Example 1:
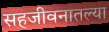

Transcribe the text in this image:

सहजीवनातल्या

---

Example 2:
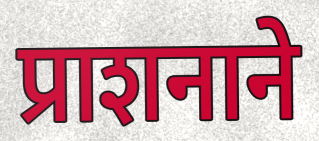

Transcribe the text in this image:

प्राशनाने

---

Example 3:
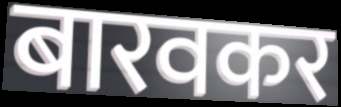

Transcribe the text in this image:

बारवकर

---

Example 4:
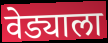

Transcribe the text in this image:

वेड्याला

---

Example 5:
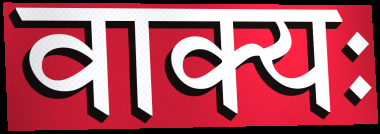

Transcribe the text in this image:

वाक्यः